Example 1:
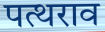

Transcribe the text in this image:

पत्थराव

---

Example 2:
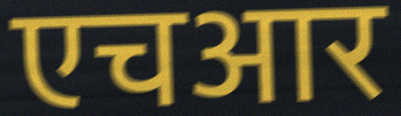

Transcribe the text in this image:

एचआर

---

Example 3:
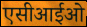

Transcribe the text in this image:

एसीआईओ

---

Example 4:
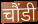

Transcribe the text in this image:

चौंडी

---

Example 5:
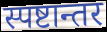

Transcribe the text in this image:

स्पष्टान्तर